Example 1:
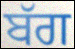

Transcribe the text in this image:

ਬੱਗ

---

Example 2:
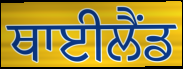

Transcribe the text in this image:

ਥਾਈਲੈਂਡ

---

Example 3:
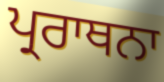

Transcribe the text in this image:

ਪ੍ਰਰਾਥਨਾ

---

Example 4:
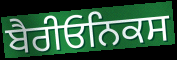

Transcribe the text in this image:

ਬੈਰੀਓਨਿਕਸ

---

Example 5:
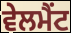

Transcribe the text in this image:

ਵੇਲਮੈਂਟ